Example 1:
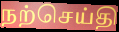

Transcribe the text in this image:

நற்செய்தி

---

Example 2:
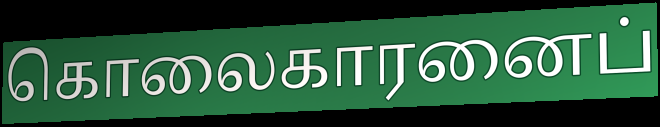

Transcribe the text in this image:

கொலைகாரனைப்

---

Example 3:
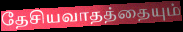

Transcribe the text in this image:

தேசியவாதத்தையும்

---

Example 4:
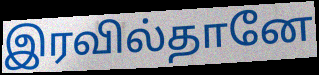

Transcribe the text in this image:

இரவில்தானே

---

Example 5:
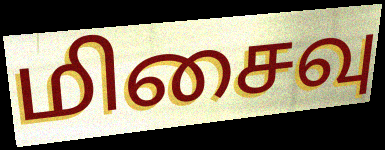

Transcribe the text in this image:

மிசைவு